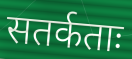
सतर्कताः